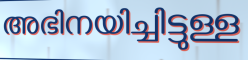
അഭിനയിച്ചിട്ടുള്ള